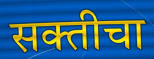
सक्‍तीचा